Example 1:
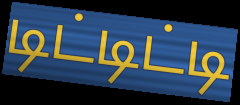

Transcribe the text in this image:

டிட்டிட்டி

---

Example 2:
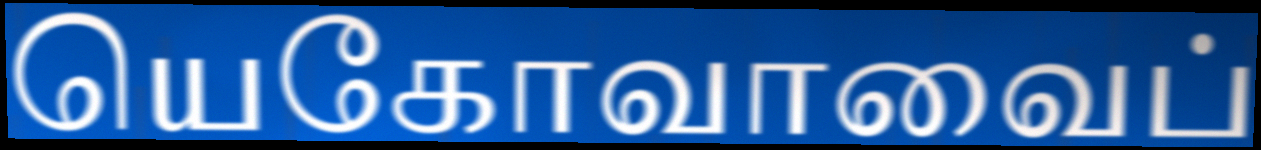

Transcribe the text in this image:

யெகோவாவைப்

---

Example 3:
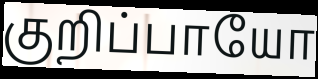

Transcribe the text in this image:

குறிப்பாயோ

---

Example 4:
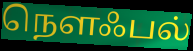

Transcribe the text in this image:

நௌஃபல்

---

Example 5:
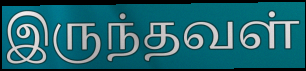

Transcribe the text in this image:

இருந்தவள்